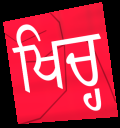
ਖਿਚ੍ਹ